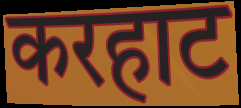
करहाट